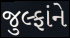
જુલ્ફાંને